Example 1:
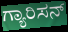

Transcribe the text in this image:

ಗ್ಯಾರಿಸನ್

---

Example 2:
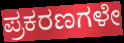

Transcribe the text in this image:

ಪ್ರಕರಣಗಳೇ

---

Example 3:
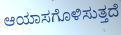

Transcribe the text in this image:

ಆಯಾಸಗೊಳಿಸುತ್ತದೆ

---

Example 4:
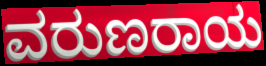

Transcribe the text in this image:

ವರುಣರಾಯ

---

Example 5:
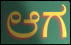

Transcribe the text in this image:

ಆಗ